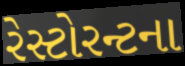
રેસ્ટોરન્ટના